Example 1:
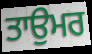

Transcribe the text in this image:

ਤਾਉਮਰ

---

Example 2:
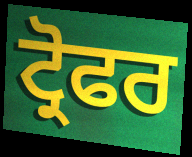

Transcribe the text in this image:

ਟ੍ਰੋਫਰ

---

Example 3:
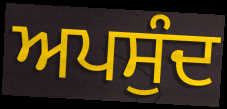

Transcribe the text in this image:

ਅਪਸੁੰਦ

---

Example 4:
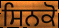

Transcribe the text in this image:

ਸਿਨਕੋ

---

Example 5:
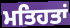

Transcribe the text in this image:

ਮਤਿਹਤਾਂ